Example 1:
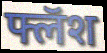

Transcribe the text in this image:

फ्लॅश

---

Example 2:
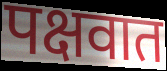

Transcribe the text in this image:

पक्षवात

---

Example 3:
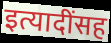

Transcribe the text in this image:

इत्यादींसह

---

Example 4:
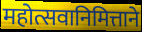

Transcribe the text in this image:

महोत्सवानिमित्ताने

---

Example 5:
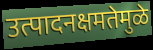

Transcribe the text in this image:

उत्पादनक्षमतेमुळे